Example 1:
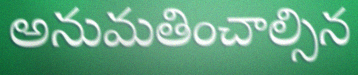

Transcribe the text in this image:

అనుమతించాల్సిన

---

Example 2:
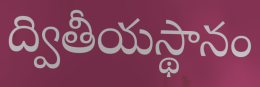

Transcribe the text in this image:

ద్వితీయస్థానం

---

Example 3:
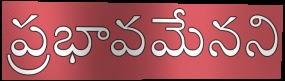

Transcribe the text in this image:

ప్రభావమేనని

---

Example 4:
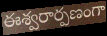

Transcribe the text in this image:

ఈశ్వరార్పణంగా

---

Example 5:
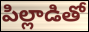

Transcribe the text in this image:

పిల్లాడితో